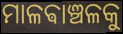
ମାଳଵାଞ୍ଚଳକୁ